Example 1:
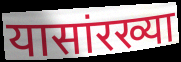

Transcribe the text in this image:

यासांरख्या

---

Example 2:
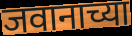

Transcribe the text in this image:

जवानाच्या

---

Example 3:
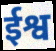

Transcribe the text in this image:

ईश्व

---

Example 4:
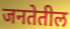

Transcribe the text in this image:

जनतेतील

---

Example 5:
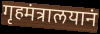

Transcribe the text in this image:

गृहमंत्रालयानं